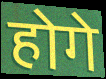
होगे